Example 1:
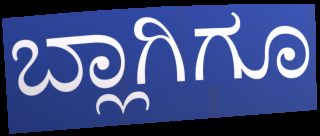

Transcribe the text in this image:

ಬ್ಲಾಗಿಗೂ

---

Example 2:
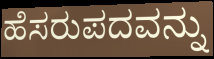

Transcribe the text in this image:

ಹೆಸರುಪದವನ್ನು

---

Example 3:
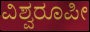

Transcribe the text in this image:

ವಿಶ್ವರೂಪೀ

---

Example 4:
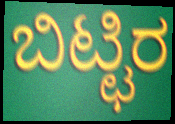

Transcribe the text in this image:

ಬಿಟ್ಟಿರ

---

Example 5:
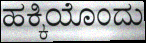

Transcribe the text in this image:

ಹಕ್ಕಿಯೊಂದು